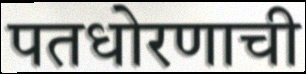
पतधोरणाची